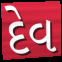
દેવ